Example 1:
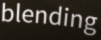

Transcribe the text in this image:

blending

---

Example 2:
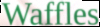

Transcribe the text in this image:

Waffles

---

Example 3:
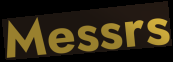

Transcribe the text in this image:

Messrs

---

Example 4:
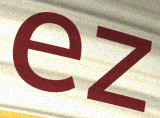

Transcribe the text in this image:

ez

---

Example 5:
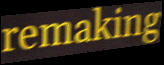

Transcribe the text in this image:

remaking